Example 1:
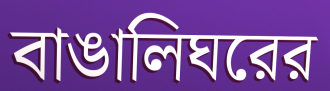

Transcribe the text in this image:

বাঙালিঘরের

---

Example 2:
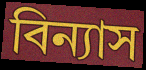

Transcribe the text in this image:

বিন্যাস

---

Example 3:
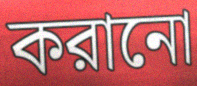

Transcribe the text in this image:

করানো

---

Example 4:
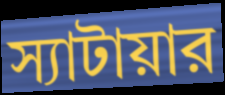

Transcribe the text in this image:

স্যাটায়ার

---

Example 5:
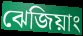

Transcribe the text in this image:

ঝেজিয়াং